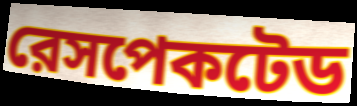
রেসপেকটেড